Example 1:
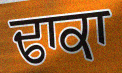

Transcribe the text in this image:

ਢਾਕਾ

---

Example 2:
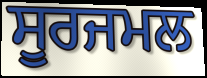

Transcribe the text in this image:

ਸੂਰਜਮਲ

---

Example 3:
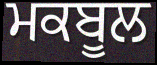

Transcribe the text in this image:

ਮਕਬੂਲ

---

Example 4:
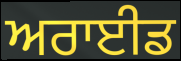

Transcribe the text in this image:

ਅਰਾਈਡ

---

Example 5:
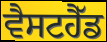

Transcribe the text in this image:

ਵੈਸਟਹੈੱਡ